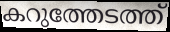
കറുത്തേടത്ത്